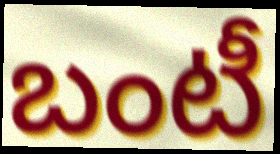
బంటీ